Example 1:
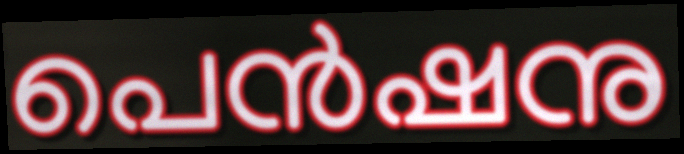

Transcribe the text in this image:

പെൻഷനു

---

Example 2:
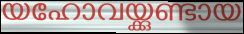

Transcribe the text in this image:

യഹോവയ്ക്കുണ്ടായ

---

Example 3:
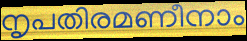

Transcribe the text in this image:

നൃപതിരമണീനാം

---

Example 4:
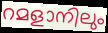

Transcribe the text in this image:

റമളാനിലും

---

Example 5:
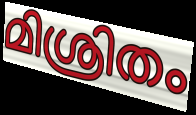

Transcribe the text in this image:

മിശ്രിതം